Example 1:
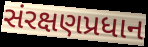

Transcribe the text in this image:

સંરક્ષણપ્રધાન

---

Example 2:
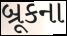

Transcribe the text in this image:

બ્રૂકના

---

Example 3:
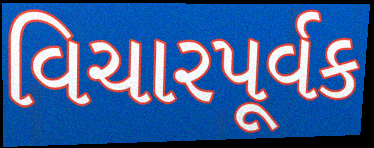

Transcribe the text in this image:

વિચારપૂર્વક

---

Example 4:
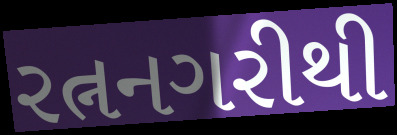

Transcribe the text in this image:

રત્નનગરીથી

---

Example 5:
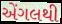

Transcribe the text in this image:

એંગલથી